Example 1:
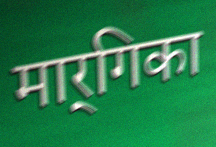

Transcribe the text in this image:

मार्गिका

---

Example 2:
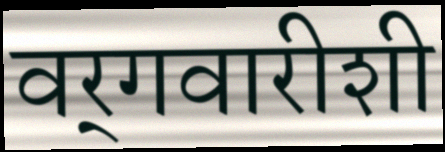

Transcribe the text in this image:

वर्गवारीशी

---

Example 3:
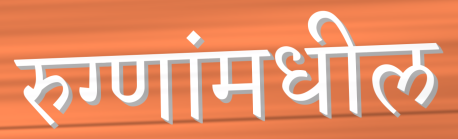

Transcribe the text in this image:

रुग्णांमधील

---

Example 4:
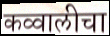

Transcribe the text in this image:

कव्वालीचा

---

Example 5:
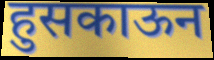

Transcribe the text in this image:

हुसकाऊन